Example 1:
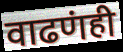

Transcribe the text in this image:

वाढणंही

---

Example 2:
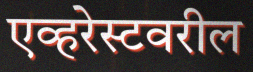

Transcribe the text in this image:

एव्हरेस्टवरील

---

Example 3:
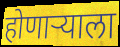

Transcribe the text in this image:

होणाऱ्याला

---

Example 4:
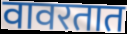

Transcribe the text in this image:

वावरतात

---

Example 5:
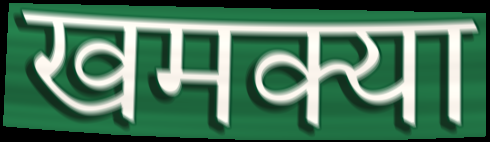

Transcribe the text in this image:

खमक्या